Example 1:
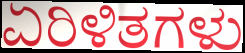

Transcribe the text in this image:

ಏರಿಳಿತಗಳು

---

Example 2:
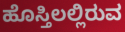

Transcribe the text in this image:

ಹೊಸ್ತಿಲಲ್ಲಿರುವ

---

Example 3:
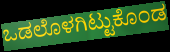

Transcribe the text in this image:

ಒಡಲೊಳಗಿಟ್ಟುಕೊಂಡ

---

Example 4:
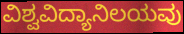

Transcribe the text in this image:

ವಿಶ್ವವಿದ್ಯಾನಿಲಯವು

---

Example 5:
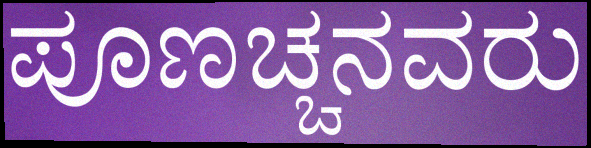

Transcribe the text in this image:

ಪೂಣಚ್ಚನವರು